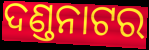
ଦଣ୍ଡନାଟର